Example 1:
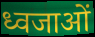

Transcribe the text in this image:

ध्वजाओं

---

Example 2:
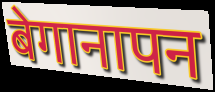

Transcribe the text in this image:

बेगानापन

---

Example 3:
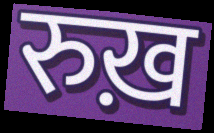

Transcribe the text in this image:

रुख़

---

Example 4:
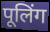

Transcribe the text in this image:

पूलिंग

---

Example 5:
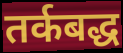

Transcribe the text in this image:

तर्कबद्ध